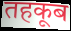
तहकूब